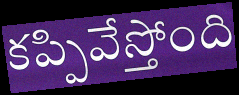
కప్పివేస్తోంది